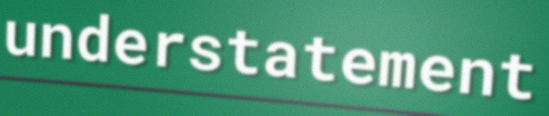
understatement